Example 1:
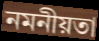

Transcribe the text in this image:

নমনীয়তা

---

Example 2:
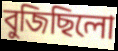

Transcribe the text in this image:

বুজিছিলো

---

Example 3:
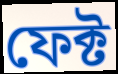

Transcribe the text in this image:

ফেক্ট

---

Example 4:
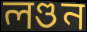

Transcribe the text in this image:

লণ্ডন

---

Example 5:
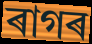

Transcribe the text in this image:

ৰাগৰ